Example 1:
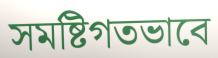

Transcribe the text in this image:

সমষ্টিগতভাবে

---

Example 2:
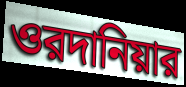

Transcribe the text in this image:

ওরদানিয়ার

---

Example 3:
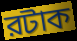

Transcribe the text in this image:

রটাক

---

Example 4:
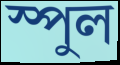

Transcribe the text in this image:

স্পুল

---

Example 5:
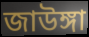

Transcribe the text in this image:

জাউঙ্গা